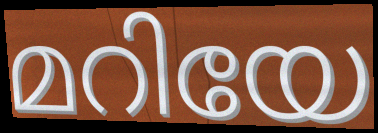
മറിയേ